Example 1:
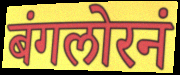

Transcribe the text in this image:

बंगलोरनं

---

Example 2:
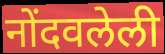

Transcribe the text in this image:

नोंदवलेली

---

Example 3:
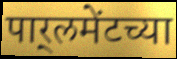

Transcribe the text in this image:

पार्लमेंटच्या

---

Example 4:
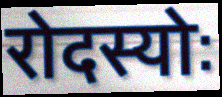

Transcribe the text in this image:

रोदस्योः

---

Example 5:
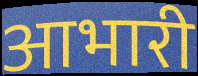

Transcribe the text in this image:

आभारी